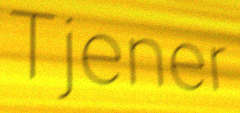
Tjener